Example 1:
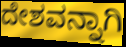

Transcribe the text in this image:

ದೇಶವನ್ನಾಗಿ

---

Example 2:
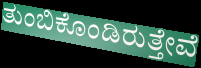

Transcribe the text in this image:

ತುಂಬಿಕೊಂಡಿರುತ್ತೇವೆ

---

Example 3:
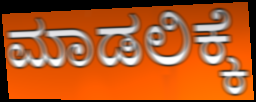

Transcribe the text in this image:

ಮಾಡಲಿಕ್ಕೆ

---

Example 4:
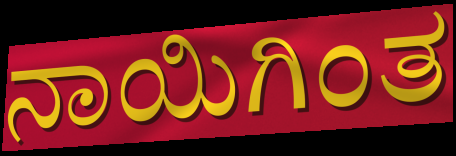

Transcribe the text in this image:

ನಾಯಿಗಿಂತ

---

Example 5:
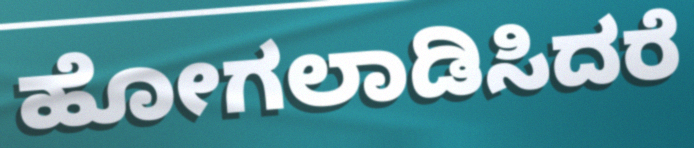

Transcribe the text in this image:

ಹೋಗಲಾಡಿಸಿದರೆ